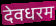
देवधरम